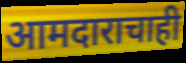
आमदाराचाही